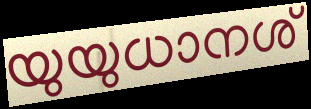
യുയുധാനശ്